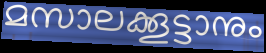
മസാലക്കൂട്ടാനും